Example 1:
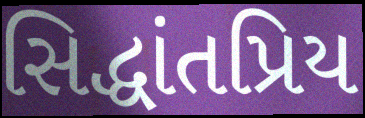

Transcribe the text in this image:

સિદ્ધાંતપ્રિય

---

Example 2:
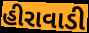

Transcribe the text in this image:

હીરાવાડી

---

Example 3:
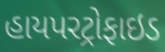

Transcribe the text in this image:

હાયપરટ્રોફાઇડ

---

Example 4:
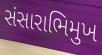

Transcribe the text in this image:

સંસારાભિમુખ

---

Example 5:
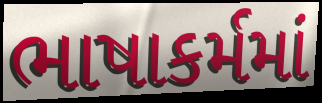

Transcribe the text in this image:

ભાષાકર્મમાં